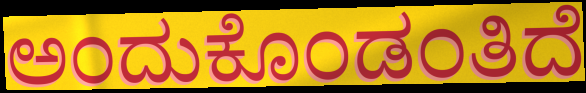
ಅಂದುಕೊಂಡಂತಿದೆ